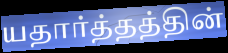
யதார்த்தத்தின்